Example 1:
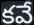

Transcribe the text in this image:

కవే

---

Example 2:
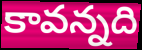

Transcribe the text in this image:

కావన్నది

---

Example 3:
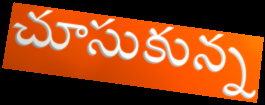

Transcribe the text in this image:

చూసుకున్న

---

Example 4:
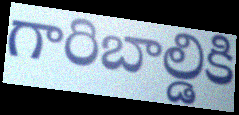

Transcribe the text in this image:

గారిబాల్డికి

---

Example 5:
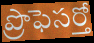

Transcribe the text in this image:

ప్రొఫెసర్తో